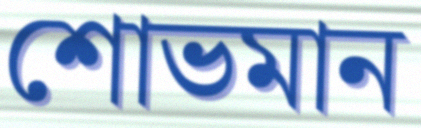
শোভমান